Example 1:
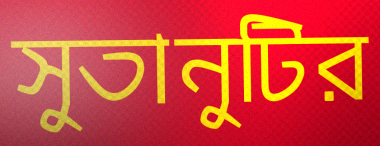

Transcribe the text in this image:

সুতানুটির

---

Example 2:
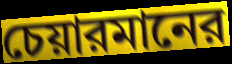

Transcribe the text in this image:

চেয়ারমানের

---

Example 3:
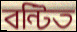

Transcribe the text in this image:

বন্টিত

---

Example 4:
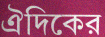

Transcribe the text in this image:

ঐদিকের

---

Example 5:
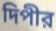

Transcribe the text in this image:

দিপীর